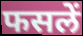
फसलें